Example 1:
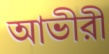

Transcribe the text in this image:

আভীরী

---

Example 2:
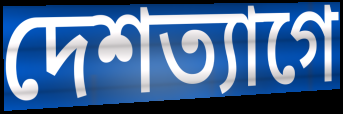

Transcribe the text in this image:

দেশত্যাগে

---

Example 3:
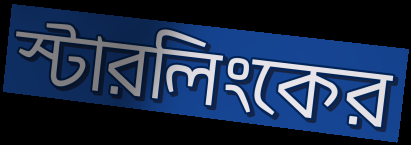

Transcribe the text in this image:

স্টারলিংকের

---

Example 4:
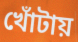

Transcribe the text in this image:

খোঁটায়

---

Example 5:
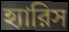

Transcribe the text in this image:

হ্যারিস